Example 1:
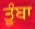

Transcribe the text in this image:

ਤੂੰਬਾ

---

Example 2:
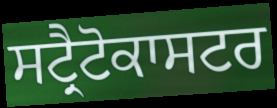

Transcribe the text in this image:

ਸਟ੍ਰੈਟੋਕਾਸਟਰ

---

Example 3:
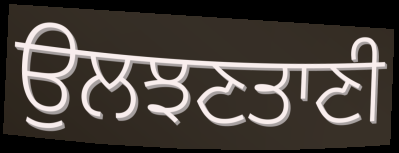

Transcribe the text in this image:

ਉਲਝਣਤਾਣੀ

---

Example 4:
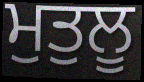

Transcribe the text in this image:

ਮੁਤੁਲੂ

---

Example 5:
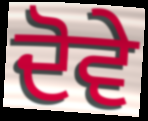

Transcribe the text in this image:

ਦੋਵੇ